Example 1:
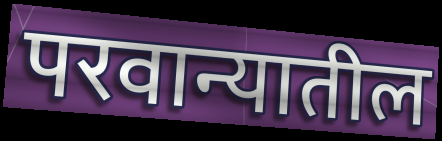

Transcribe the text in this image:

परवान्यातील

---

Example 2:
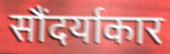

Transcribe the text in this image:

सौंदर्याकार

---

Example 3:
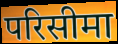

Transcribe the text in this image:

परिसीमा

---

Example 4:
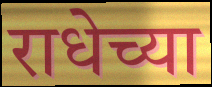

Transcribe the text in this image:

राधेच्या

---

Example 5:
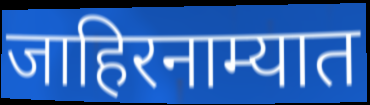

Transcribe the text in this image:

जाहिरनाम्यात